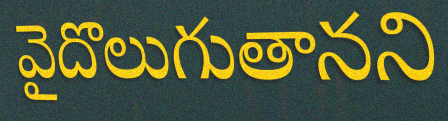
వైదొలుగుతానని